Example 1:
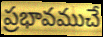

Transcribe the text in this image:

ప్రభావముచే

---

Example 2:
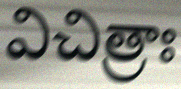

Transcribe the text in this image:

విచిత్రాః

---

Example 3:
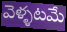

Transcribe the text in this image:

వెళ్ళటమే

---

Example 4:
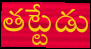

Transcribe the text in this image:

తట్టేడు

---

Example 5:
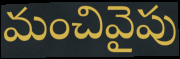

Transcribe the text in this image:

మంచివైపు